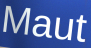
Maut